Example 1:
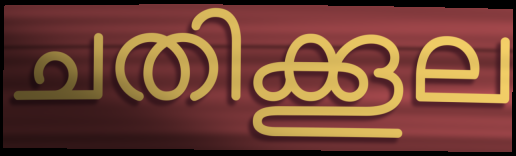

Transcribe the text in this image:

ചതിക്കൂല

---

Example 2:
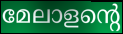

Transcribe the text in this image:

മേലാളന്റെ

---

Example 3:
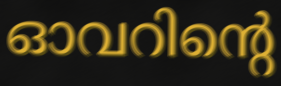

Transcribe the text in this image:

ഓവറിന്റെ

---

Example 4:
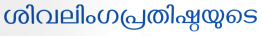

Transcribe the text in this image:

ശിവലിംഗപ്രതിഷ്ഠയുടെ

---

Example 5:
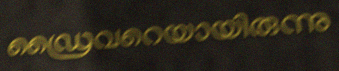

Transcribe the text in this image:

ഡ്രൈവറെയായിരുന്നു